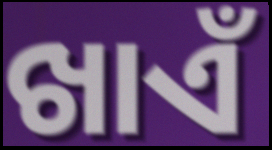
ଖାଏଁ